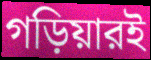
গড়িয়ারই